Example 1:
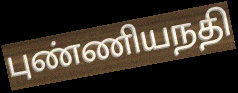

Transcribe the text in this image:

புண்ணியநதி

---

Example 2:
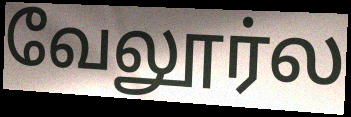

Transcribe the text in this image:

வேலூர்ல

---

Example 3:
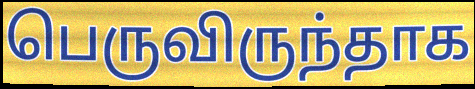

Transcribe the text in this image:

பெருவிருந்தாக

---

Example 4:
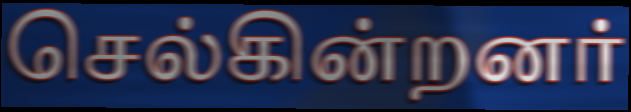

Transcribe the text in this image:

செல்கின்றனர்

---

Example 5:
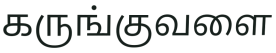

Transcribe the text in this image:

கருங்குவளை